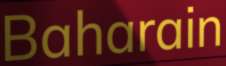
Baharain